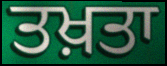
ਤਖ਼ਤਾ